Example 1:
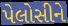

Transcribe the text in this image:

પેલોસીને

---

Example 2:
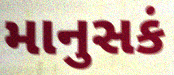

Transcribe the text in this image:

માનુસકં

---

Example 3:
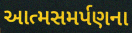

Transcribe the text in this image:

આત્મસમર્પણના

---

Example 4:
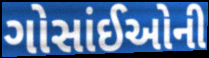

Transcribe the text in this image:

ગોસાંઈઓની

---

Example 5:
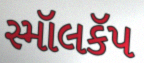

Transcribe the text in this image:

સ્મૉલકૅપ